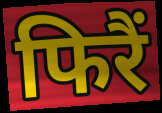
फिरैं